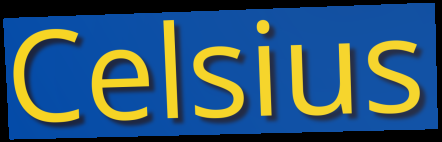
Celsius